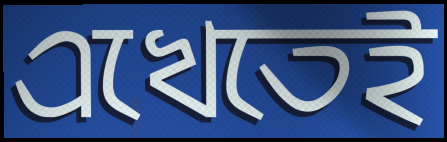
এখেতেই